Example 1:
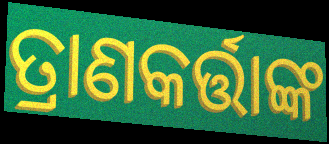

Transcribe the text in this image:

ତ୍ରାଣକର୍ତ୍ତାଙ୍କ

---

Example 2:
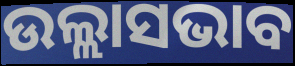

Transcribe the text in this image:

ଉଲ୍ଲାସଭାବ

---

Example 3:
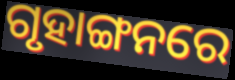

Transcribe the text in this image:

ଗୃହାଙ୍ଗନରେ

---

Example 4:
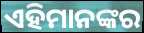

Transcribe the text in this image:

ଏହିମାନଙ୍କର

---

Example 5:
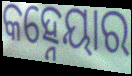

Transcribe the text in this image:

କହ୍ନେୟାର